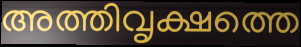
അത്തിവൃക്ഷത്തെ